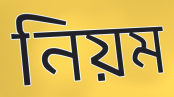
নিয়ম